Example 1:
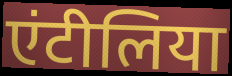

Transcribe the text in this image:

एंटीलिया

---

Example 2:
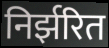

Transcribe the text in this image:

निर्झरित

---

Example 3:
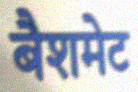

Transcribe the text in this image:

बैशमेट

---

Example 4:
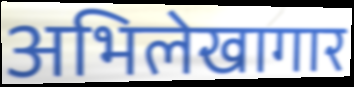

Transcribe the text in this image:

अभिलेखागार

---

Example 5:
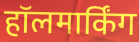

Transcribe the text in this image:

हॉलमार्किंग